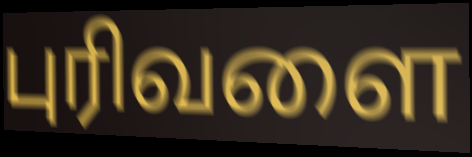
புரிவளை